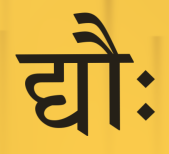
द्यौः